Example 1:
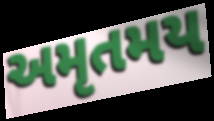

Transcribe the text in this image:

અમૃતમય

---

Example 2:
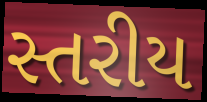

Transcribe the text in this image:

સ્તરીય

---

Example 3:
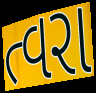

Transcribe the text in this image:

ત્વરા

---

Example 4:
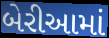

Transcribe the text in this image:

બેરીઆમાં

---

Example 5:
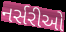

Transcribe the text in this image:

નર્સરીઓ